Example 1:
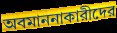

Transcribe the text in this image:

অবমাননাকারীদের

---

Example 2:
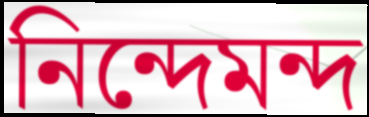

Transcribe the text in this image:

নিন্দেমন্দ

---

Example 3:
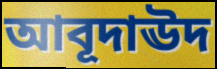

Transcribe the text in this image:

আবূদাঊদ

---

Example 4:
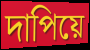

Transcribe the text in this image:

দাপিয়ে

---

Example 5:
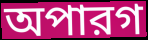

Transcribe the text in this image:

অপারগ